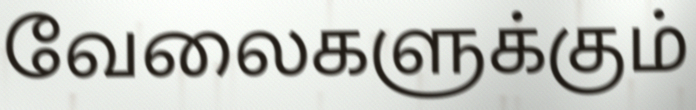
வேலைகளுக்கும்